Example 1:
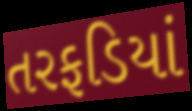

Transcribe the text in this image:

તરફડિયાં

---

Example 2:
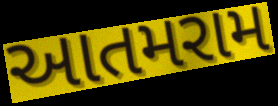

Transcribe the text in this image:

આતમરામ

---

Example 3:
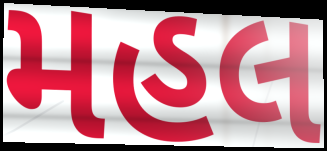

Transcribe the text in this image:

મહલ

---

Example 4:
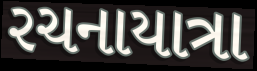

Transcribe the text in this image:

રચનાયાત્રા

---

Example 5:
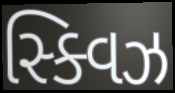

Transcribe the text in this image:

સ્ક્વિઝ